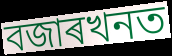
বজাৰখনত